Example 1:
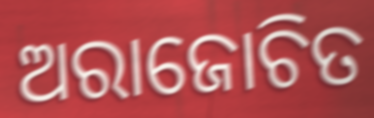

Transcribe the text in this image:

ଅରାଜୋଚିତ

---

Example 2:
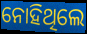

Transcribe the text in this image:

ନୋହିଥିଲେ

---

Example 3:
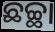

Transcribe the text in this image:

ଛଚ୍ଛା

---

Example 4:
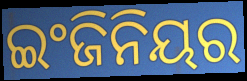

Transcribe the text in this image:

ଇଂଜିନିୟର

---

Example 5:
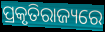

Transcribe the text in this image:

ପ୍ରକୃତିରାଜ୍ୟରେ